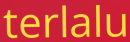
terlalu